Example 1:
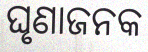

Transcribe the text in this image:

ଘୃଣାଜନକ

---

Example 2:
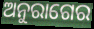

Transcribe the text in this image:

ଅନୁରାଗେର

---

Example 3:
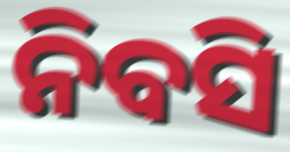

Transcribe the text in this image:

ନିବସି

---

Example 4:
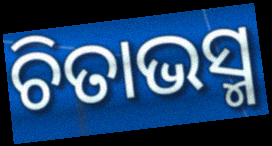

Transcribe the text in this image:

ଚିତାଭସ୍ମ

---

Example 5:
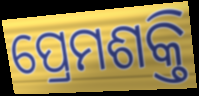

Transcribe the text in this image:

ପ୍ରେମଶକ୍ତି